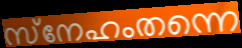
സ്‌നേഹംതന്നെ